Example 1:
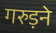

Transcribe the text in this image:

गरुड़ने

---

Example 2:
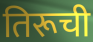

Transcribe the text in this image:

तिरूची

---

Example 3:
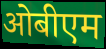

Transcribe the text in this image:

ओबीएम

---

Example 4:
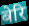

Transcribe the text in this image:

बेरि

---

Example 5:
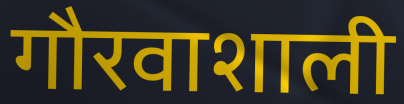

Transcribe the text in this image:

गौरवाशाली